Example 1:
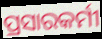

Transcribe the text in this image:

ପ୍ରସାରକର୍ମୀ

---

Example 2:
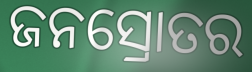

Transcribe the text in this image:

ଜନସ୍ରୋତର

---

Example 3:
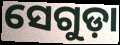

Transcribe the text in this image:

ସେଗୁଡ଼ା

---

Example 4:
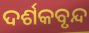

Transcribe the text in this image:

ଦର୍ଶକବୃନ୍ଦ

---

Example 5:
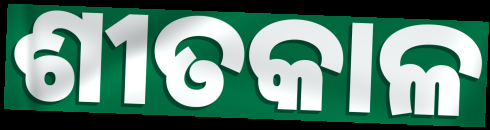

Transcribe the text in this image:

ଶୀତକାଳ